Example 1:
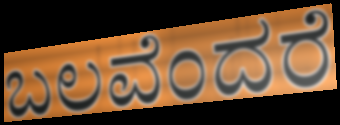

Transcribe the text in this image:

ಬಲವೆಂದರೆ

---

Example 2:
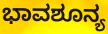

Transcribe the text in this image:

ಭಾವಶೂನ್ಯ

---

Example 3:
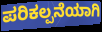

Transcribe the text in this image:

ಪರಿಕಲ್ಪನೆಯಾಗಿ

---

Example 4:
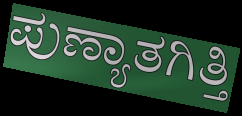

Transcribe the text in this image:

ಪುಣ್ಯಾತಗಿತ್ತಿ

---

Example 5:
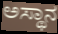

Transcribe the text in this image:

ಅಸ್ಥಾನ